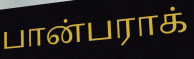
பான்பராக்